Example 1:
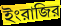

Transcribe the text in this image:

ইংরাজির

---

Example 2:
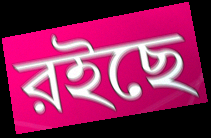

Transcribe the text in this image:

রইছে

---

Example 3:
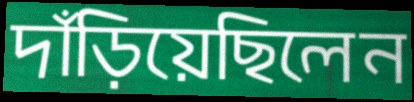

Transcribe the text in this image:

দাঁড়িয়েছিলেন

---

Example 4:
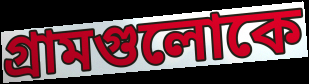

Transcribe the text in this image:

গ্রামগুলোকে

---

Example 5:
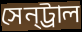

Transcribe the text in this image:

সেন্‌ট্রাল